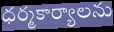
ధర్మకార్యాలను